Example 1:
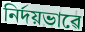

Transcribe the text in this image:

নিৰ্দয়ভাৱে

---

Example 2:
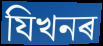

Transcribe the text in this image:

যিখনৰ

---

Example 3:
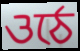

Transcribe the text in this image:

ওঠে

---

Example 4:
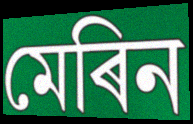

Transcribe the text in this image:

মেৰিন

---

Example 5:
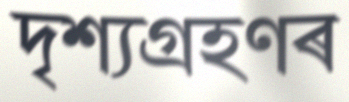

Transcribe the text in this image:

দৃশ্যগ্ৰহণৰ